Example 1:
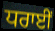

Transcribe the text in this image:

ਧਰਾਈਂ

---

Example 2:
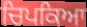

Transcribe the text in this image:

ਚਿਪਕਿਆ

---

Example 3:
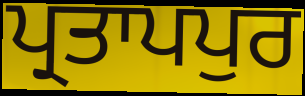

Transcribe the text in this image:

ਪ੍ਰਤਾਪਪੁਰ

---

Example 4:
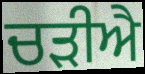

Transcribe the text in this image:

ਚੜੀਐ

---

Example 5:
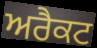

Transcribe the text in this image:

ਅਰੈਕਟ